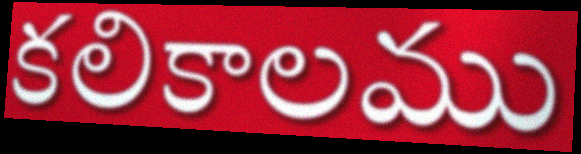
కలికాలము